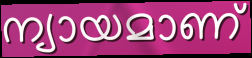
ന്യായമാണ്